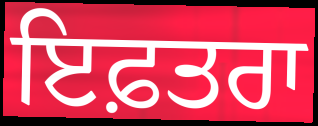
ਇਫ਼ਤਰਾ